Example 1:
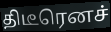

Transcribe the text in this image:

திடீரெனச்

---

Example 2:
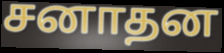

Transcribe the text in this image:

சனாதன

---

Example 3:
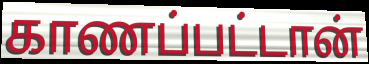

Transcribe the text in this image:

காணப்பட்டான்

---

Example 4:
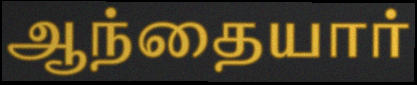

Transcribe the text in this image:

ஆந்தையார்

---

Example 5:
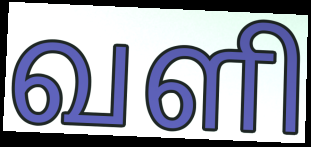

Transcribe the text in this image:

வளி